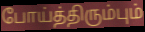
போய்த்திரும்பும்